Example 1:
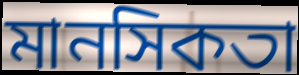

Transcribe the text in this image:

মানসিকতা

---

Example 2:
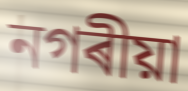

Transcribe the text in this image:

নগৰীয়া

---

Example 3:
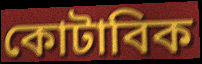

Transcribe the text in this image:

কোটাবিক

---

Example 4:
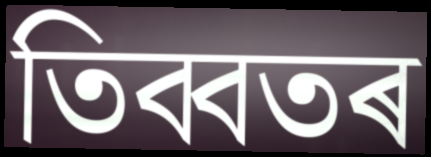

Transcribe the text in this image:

তিব্বতৰ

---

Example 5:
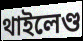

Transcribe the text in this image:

থাইলেণ্ড